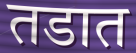
तडात